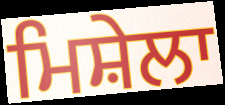
ਮਿਸ਼ੇਲਾ